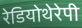
रेडियोथेरेपी